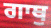
ਗਾਥੁ